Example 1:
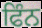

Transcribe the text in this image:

ਫਿੰਨ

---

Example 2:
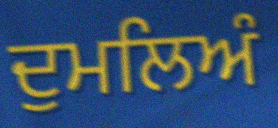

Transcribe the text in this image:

ਦੁਮਲਿਅੰ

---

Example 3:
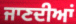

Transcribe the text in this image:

ਜਾਣਦੀਆਂ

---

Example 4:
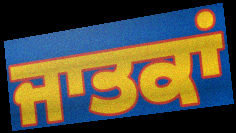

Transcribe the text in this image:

ਜਾਤਕਾਂ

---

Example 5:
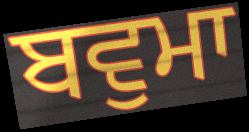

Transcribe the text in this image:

ਬਵੁਮਾ